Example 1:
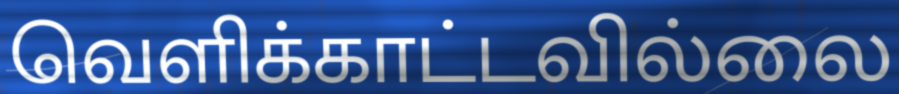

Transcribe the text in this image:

வெளிக்காட்டவில்லை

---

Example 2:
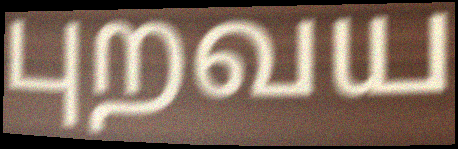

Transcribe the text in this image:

புறவய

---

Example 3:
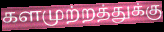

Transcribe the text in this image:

களமுற்றத்துக்கு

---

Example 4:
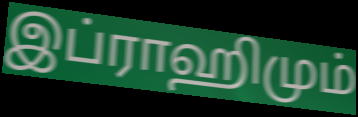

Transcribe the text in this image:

இப்ராஹிமும்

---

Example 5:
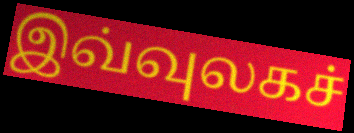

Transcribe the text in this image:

இவ்வுலகச்